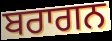
ਬਰਾਗਨ